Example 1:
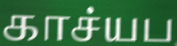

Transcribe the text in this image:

காச்யப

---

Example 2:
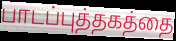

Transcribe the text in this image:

பாடப்புத்தகத்தை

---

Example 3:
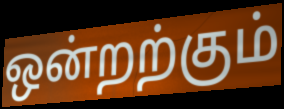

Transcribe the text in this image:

ஒன்றற்கும்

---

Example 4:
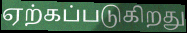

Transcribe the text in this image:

ஏற்கப்படுகிறது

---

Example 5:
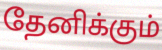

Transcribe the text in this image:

தேனிக்கும்